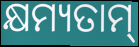
କ୍ଷମ୍ୟତାମ୍